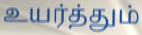
உயர்த்தும்